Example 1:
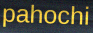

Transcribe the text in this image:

pahochi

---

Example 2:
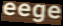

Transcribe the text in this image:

eege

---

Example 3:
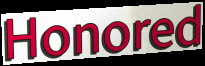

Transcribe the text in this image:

Honored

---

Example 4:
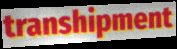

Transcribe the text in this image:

transhipment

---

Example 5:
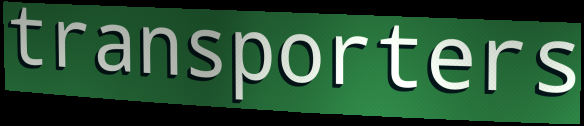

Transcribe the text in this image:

transporters